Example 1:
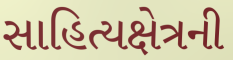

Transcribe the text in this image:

સાહિત્યક્ષેત્રની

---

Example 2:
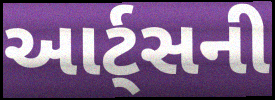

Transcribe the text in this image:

આર્ટ્સની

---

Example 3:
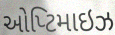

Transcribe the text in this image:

ઓપ્ટિમાઇઝ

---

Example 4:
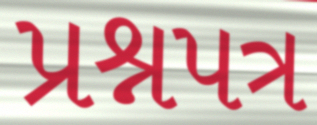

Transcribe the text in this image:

પ્રશ્નપત્ર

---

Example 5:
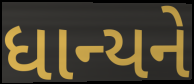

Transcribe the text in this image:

ધાન્યને